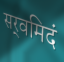
सर्वमिदं